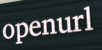
openurl